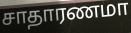
சாதாரணமா